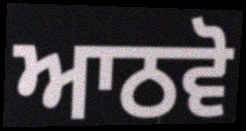
ਆਠਵੋ